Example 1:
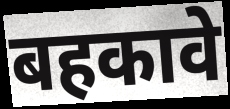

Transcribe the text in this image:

बहकावे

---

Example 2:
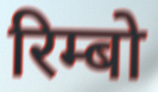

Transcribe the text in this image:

रिम्बो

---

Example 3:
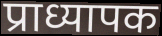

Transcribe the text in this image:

प्राध्यापक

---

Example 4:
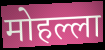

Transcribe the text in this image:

मोहल्‍ला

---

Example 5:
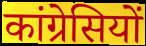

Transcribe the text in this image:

कांग्रेसियों